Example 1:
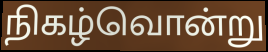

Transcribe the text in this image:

நிகழ்வொன்று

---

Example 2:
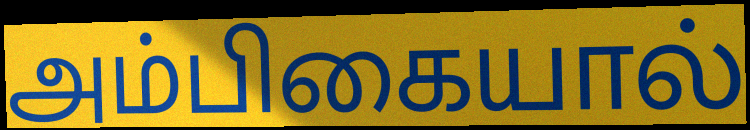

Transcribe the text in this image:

அம்பிகையால்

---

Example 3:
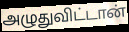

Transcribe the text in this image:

அழுதுவிட்டான்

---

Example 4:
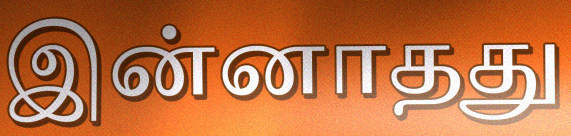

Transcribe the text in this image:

இன்னாதது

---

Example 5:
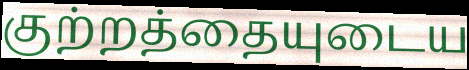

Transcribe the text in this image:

குற்றத்தையுடைய